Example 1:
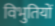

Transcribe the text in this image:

विभुतियों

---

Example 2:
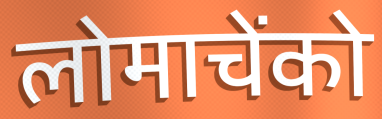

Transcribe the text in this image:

लोमाचेंको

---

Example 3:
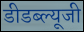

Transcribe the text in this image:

डीडब्ल्यूजी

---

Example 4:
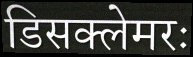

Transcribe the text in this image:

डिसक्लेमरः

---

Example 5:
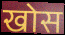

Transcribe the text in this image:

खोस